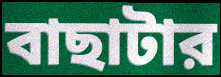
বাছাটার